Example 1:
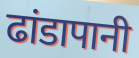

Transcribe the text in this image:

ढांडापानी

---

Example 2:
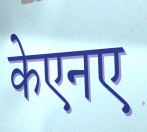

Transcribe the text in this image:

केएनए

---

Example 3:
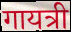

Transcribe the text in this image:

गायत्री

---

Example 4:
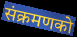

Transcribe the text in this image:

संक्रमणको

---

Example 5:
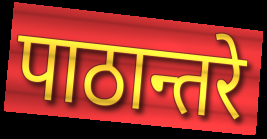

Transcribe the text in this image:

पाठान्तरे